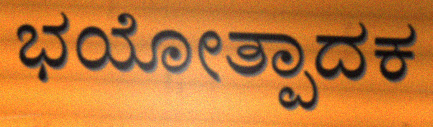
ಭಯೋತ್ಪಾದಕ